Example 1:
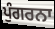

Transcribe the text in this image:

ਪੁੰਗਰਨਾ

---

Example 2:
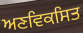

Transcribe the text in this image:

ਅਣਵਿਕਸਿਤ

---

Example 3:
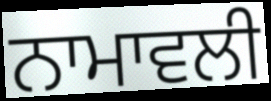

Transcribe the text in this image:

ਨਾਮਾਵਲੀ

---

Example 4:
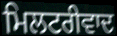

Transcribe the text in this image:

ਮਿਲਟਰੀਵਾਦ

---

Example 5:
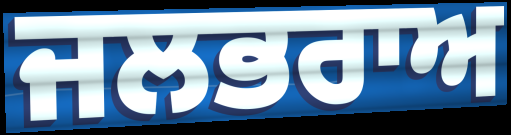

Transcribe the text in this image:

ਜਲਭਰਾਅ